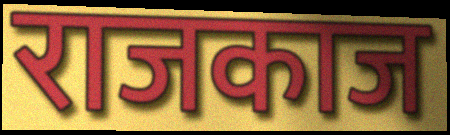
राजकाज